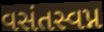
વસંતસ્વપ્ન